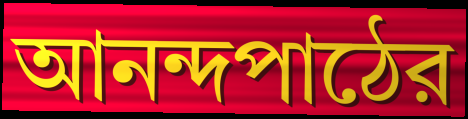
আনন্দপাঠের